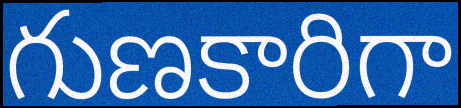
గుణకారిగా